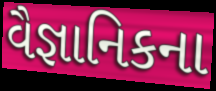
વૈજ્ઞાનિકના